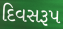
દિવસરૂપ